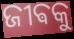
ଜୀଵକୁ